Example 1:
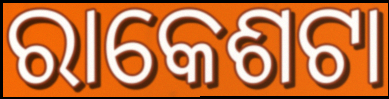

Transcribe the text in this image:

ରାକେଶଟା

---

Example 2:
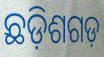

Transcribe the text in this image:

ଛଡ଼ିଶଗଡ଼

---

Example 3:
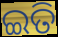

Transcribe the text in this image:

ଇତି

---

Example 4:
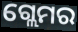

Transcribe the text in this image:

ଗ୍ଲେମର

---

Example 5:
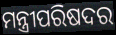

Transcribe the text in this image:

ମନ୍ତ୍ରୀପରିଷଦର